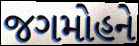
જગમોહને